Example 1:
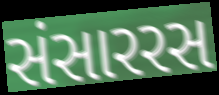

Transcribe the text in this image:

સંસારરસ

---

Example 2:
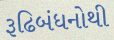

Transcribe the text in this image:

રૂઢિબંધનોથી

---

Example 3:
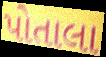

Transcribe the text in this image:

પોતાલા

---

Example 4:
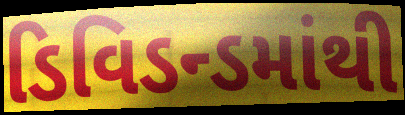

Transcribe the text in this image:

ડિવિડન્ડમાંથી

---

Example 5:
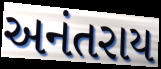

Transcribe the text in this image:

અનંતરાય